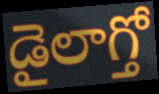
డైలాగ్తో